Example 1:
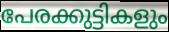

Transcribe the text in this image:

പേരക്കുട്ടികളും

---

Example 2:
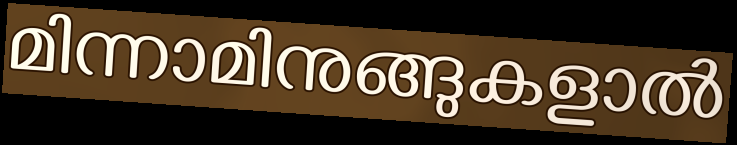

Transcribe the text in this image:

മിന്നാമിനുങ്ങുകളാൽ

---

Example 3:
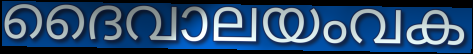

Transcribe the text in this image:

ദൈവാലയംവക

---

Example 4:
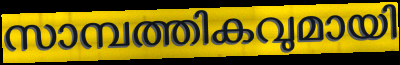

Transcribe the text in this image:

സാമ്പത്തികവുമായി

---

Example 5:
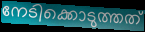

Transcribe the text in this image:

നേടിക്കൊടുത്തത്